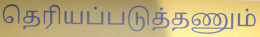
தெரியப்படுத்தணும்